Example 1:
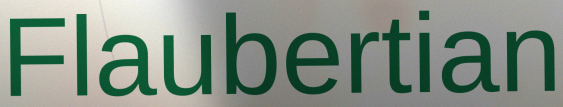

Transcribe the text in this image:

Flaubertian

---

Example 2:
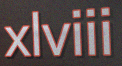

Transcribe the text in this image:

xlviii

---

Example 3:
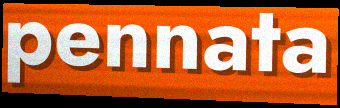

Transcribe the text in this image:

pennata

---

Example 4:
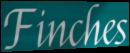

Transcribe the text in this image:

Finches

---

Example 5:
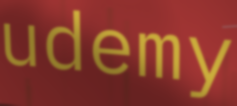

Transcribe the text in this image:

udemy